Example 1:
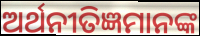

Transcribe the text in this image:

ଅର୍ଥନୀତିଜ୍ଞମାନଙ୍କ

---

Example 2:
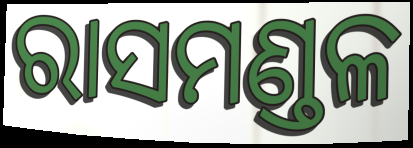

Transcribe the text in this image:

ରାସମଣ୍ଡଳ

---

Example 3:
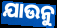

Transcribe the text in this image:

ଯାଉନୁ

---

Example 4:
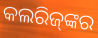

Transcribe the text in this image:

କଲରିଜ୍‌ଙ୍କର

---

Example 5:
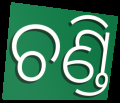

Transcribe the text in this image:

ଚଣ୍ଡି